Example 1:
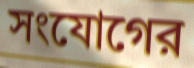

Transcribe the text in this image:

সংযোগের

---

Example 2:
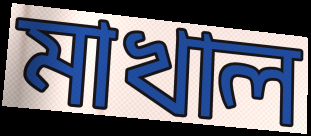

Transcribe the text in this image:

মাখাল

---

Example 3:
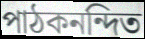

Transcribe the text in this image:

পাঠকনন্দিত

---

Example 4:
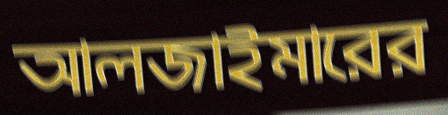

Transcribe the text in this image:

আলজাইমারের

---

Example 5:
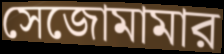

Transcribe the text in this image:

সেজোমামার